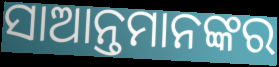
ସାଆନ୍ତମାନଙ୍କର